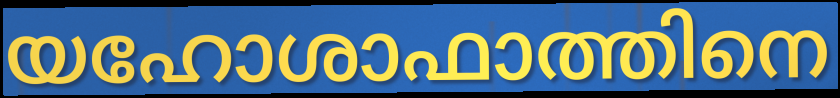
യഹോശാഫാത്തിനെ